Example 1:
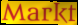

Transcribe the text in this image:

Markt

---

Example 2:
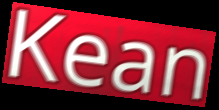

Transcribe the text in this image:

Kean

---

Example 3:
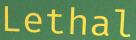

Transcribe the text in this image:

Lethal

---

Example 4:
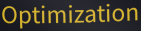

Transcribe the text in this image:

Optimization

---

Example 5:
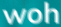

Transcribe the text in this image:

woh